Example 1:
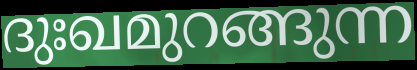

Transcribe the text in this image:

ദുഃഖമുറങ്ങുന്ന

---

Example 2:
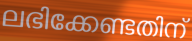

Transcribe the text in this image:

ലഭിക്കേണ്ടതിന്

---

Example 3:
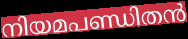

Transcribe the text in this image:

നിയമപണ്ഡിതൻ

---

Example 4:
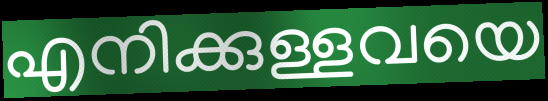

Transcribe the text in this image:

എനിക്കുള്ളവയെ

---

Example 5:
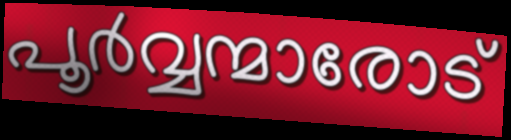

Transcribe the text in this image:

പൂർവ്വന്മാരോട്